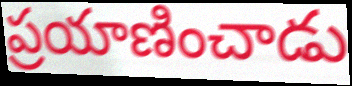
ప్రయాణించాడు